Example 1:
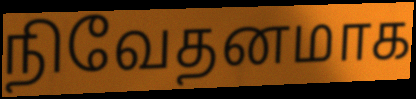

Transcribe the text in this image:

நிவேதனமாக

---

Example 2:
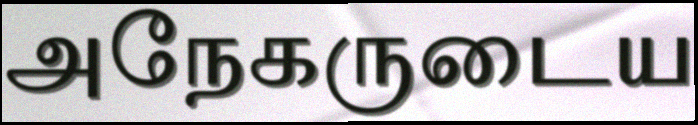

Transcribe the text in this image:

அநேகருடைய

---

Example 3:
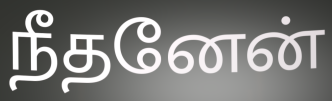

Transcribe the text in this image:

நீதனேன்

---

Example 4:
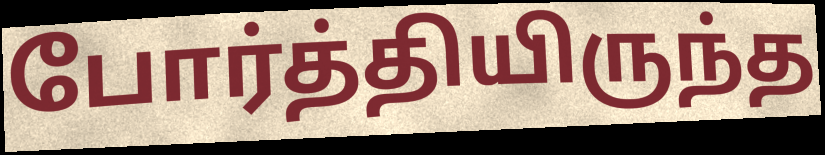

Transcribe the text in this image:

போர்த்தியிருந்த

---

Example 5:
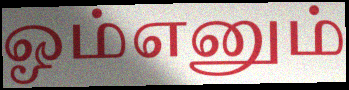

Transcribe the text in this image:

ஓம்எனும்